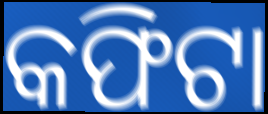
କଫିଟା